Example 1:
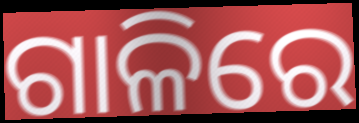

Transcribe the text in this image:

ଗାଳିରେ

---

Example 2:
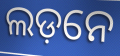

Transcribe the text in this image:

ଲଡ଼ନେ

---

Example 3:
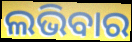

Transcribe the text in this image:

ଲଭିବାର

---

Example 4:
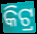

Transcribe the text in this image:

କିଟ୍ର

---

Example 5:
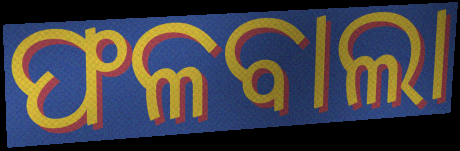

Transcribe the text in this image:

ଫଳବାଲା